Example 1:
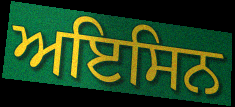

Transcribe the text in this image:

ਅਇਸਿਨ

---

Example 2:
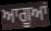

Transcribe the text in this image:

ਆਗੂਆਂ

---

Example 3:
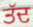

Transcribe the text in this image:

ਤੱਦ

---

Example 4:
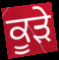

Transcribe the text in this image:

ਕੂਡ਼ੇ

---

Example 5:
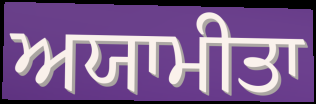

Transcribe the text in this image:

ਅਯਾਮੀਤਾ